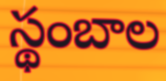
స్థంబాల